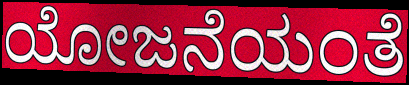
ಯೋಜನೆಯಂತೆ